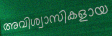
അവിശ്വാസികളായ